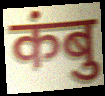
कंबु